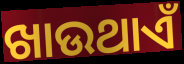
ଖାଉଥାଏଁ